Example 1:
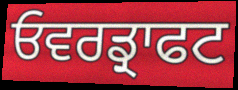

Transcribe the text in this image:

ਓਵਰਡ੍ਰਾਫਟ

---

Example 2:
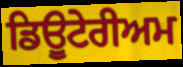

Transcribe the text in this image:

ਡਿਊਟੇਰੀਅਮ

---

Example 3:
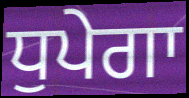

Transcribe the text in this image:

ਧੁਪੇਗਾ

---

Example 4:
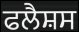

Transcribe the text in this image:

ਫਲੈਸ਼ਸ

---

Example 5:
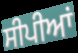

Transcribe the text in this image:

ਸੀਪੀਆਂ